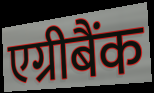
एग्रीबैंक